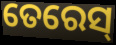
ତେରେସ୍